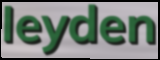
Ieyden